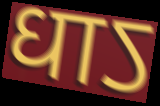
धाऽ